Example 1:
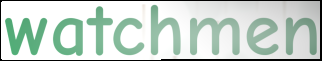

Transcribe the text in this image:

watchmen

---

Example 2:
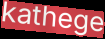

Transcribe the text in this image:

kathege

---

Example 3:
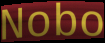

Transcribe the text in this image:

Nobo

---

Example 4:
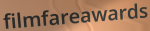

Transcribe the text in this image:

filmfareawards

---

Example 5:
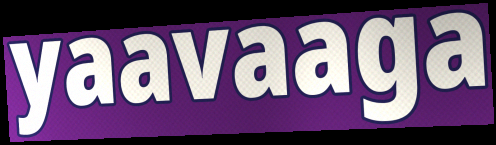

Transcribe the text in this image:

yaavaaga